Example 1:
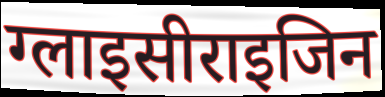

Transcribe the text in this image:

ग्लाइसीराइजिन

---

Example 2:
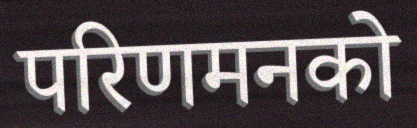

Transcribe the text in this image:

परिणमनको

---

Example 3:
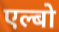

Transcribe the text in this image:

एल्बो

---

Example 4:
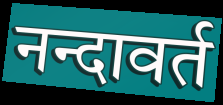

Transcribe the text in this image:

नन्दावर्त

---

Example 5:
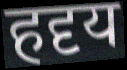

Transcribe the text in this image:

हदृय